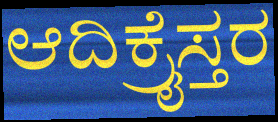
ಆದಿಕ್ರೈಸ್ತರ